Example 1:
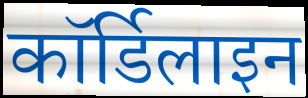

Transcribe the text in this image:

कॉर्डिलाइन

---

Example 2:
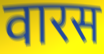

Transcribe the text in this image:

वारस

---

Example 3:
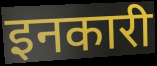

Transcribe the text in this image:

इनकारी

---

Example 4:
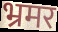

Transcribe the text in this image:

भ्रमर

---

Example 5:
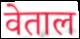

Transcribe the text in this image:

वेताल